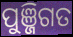
ପୁଞ୍ଜିଗତ